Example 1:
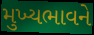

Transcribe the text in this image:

મુખ્યભાવને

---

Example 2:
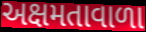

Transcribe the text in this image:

અક્ષમતાવાળા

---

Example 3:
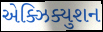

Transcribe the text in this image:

એક્ઝિક્યુશન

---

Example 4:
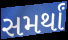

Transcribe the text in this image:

સમર્થાં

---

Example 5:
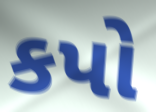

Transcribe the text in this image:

કપો